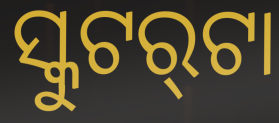
ସ୍କୁଟର୍‌ଟା